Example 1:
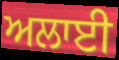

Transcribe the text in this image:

ਅਲਾਈ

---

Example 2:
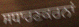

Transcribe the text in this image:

ਸਧਾਰਣਕਰਨਾਂ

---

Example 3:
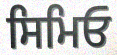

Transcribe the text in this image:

ਸਿਮਿਓ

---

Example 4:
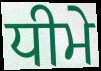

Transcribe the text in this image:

ਧੀਮੇ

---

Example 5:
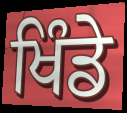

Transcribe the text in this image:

ਖਿੰਡੇ